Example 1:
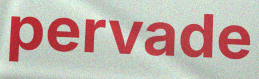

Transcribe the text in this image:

pervade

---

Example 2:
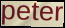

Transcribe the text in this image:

peter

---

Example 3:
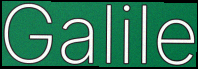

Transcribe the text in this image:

Galile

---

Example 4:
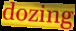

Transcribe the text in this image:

dozing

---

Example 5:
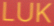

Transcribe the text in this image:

LUK